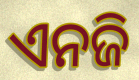
ଏନଜି